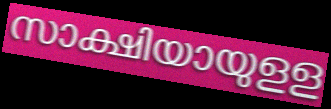
സാക്ഷിയായുളള